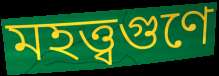
মহত্ত্বগুণে